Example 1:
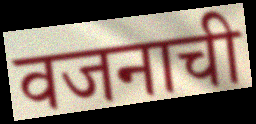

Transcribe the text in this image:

वजनाची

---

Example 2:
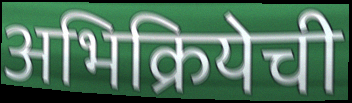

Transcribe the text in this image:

अभिक्रियेची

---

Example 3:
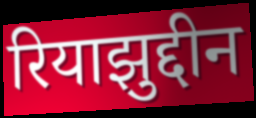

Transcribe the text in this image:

रियाझुद्दीन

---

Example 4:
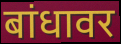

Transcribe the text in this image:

बांधावर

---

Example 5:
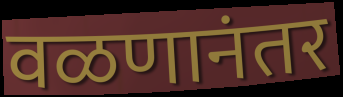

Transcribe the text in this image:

वळणानंतर